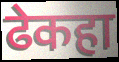
ढेकहा